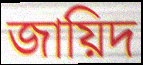
জায়িদ